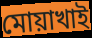
মোয়াখাই